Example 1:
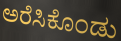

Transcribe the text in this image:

ಅರೆಸಿಕೊಂಡು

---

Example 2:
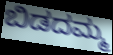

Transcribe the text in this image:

ಬಿಡದಮ್ಮ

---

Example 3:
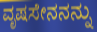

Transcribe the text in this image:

ವೃಷಸೇನನನ್ನು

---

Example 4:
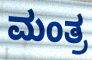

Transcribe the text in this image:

ಮಂತ್ರ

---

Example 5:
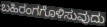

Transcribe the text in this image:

ಬಹಿರಂಗಗೊಳಿಸುವುದು